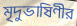
মৃদুভাষিণীর